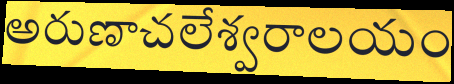
అరుణాచలేశ్వరాలయం